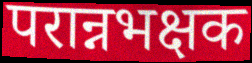
परान्नभक्षक